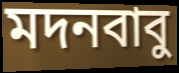
মদনবাবু